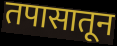
तपासातून